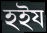
হইয